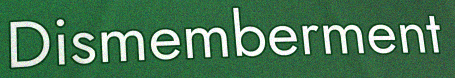
Dismemberment